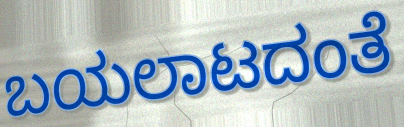
ಬಯಲಾಟದಂತೆ